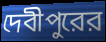
দেবীপুরের